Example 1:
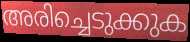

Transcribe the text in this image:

അരിച്ചെടുക്കുക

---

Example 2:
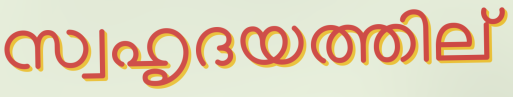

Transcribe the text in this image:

സ്വഹൃദയത്തില്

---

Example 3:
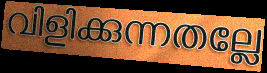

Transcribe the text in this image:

വിളിക്കുന്നതല്ലേ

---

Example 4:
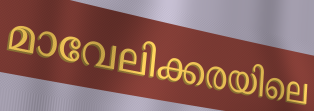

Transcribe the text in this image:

മാവേലിക്കരയിലെ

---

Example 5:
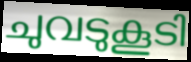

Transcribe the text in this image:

ചുവടുകൂടി